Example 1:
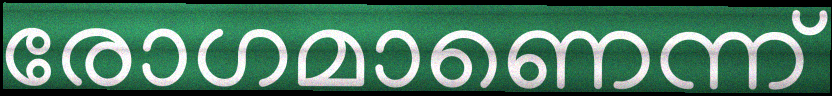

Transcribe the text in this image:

രോഗമാണെന്ന്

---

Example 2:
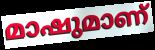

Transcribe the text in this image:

മാഷുമാണ്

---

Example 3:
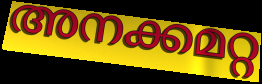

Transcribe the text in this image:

അനക്കമറ്റ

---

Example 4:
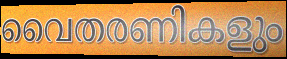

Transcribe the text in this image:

വൈതരണികളും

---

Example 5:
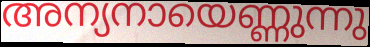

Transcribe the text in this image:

അന്യനായെണ്ണുന്നു